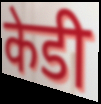
केडी